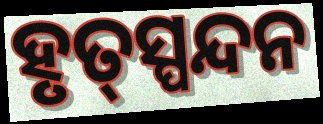
ହୃତ୍‍ସ୍ପନ୍ଦନ